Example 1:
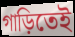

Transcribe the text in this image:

গাড়িতেই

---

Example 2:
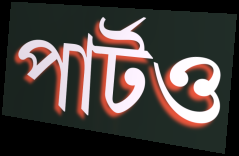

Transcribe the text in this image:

পার্টও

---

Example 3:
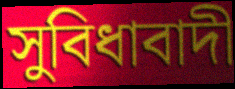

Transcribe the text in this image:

সুবিধাবাদী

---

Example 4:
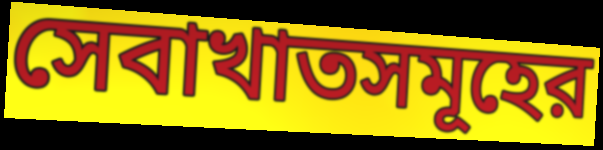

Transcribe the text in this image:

সেবাখাতসমূহের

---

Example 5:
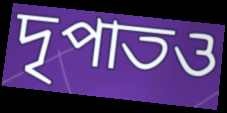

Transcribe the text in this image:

দৃপাতও